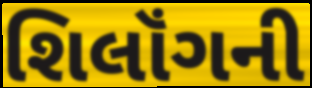
શિલૉંગની